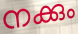
നക്കും